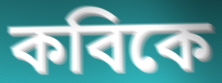
কবিকে